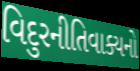
વિદુરનીતિવાક્યનો